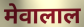
मेवालाल